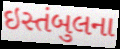
ઇસ્તંબુલના